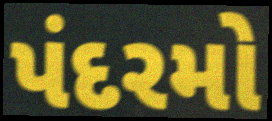
પંદરમો